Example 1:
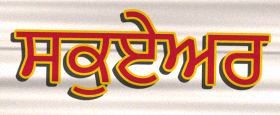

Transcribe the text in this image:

ਸਕੁਏਅਰ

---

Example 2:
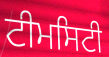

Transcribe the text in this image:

ਟੀਮਸਿਟੀ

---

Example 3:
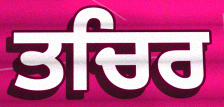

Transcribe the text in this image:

ਤਚਿਰ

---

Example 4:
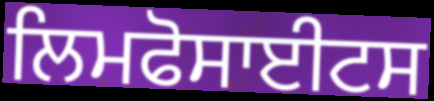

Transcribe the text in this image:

ਲਿਮਫੋਸਾਈਟਸ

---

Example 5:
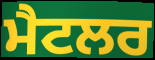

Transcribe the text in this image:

ਮੈਟਲਰ